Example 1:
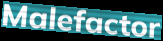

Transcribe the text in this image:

Malefactor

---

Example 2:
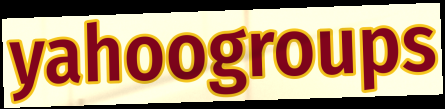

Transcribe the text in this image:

yahoogroups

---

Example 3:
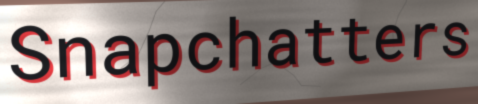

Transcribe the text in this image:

Snapchatters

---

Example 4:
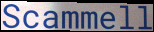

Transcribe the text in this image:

Scammell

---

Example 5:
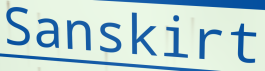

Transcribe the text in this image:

Sanskirt